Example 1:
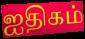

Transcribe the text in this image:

ஐதிகம்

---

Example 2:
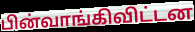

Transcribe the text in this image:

பின்வாங்கிவிட்டன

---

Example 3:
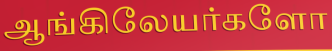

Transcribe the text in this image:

ஆங்கிலேயர்களோ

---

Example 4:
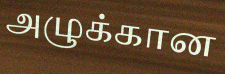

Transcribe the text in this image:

அழுக்கான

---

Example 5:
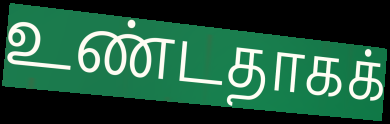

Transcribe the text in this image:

உண்டதாகக்